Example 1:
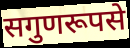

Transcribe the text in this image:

सगुणरूपसे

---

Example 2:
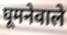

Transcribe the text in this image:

घूमनेवाले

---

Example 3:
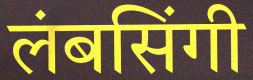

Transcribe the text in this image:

लंबसिंगी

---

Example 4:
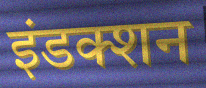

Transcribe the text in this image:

इंडक्शन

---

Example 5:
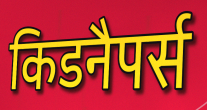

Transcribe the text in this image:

किडनैपर्स